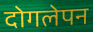
दोगलेपन